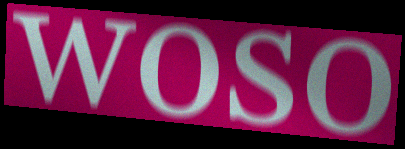
woso